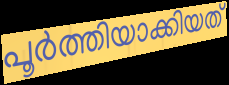
പൂർത്തിയാക്കിയത്